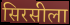
सिरसीला